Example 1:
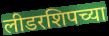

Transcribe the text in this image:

लीडरशिपच्या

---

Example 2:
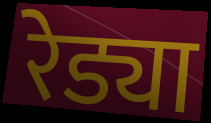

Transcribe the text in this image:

रेड्या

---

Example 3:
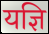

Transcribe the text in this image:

यज्ञि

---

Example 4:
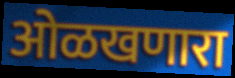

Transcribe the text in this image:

ओळखणारा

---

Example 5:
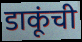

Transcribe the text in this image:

डाकूंची